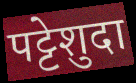
पट्टेशुदा